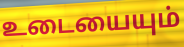
உடையையும்